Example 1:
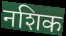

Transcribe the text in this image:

नशिक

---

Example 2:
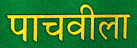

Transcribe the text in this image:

पाचवीला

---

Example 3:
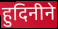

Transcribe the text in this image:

हुदिनीने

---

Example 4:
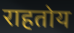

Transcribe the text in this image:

राहतोय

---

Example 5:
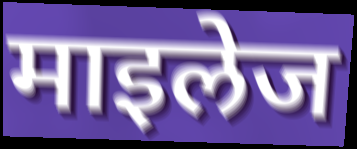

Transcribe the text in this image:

माइलेज